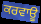
ਕਰਵਾਊ